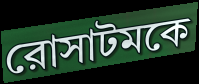
রোসাটমকে